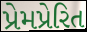
પ્રેમપ્રેરિત